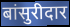
बांसुरीदार